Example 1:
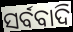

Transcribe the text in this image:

ସର୍ବବାଦି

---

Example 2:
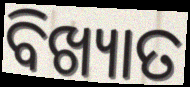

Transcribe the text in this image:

ବିଖ୍ୟାତ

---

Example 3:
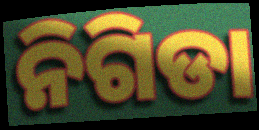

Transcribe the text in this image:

ନିଗିଡା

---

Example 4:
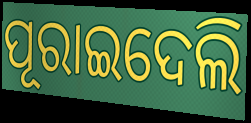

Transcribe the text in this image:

ପୂରାଇଦେଲି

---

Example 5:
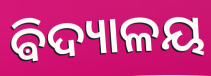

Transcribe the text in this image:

ଵିଦ୍ୟାଳୟ